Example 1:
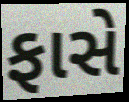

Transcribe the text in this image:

ફાસે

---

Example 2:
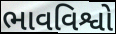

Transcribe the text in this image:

ભાવવિશ્વો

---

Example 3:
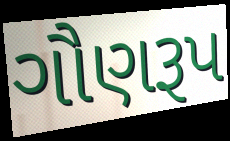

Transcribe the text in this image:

ગૌણરૂપ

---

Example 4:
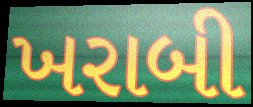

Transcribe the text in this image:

ખરાબી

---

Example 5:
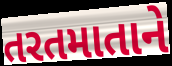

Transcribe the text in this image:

તરતમાતાને